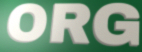
ORG